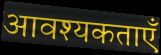
आवश्यकताएँ